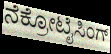
ನೆಕ್ರೋಟೈಸಿಂಗ್